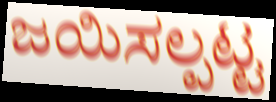
ಜಯಿಸಲ್ಪಟ್ಟ